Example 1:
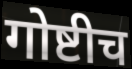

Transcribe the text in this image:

गोष्टीच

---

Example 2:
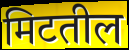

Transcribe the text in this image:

मिटतील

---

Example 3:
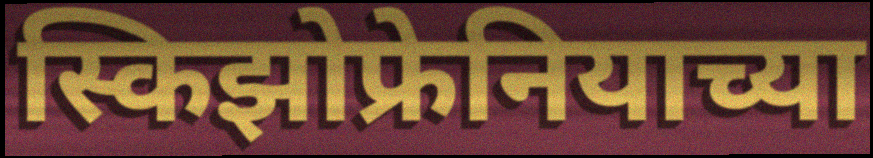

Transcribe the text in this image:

स्किझोफ्रेनियाच्या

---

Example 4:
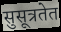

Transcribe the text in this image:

सुसूत्रतेत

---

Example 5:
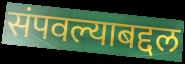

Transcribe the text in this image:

संपवल्याबद्दल